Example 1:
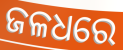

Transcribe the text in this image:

ଜଳଧରେ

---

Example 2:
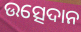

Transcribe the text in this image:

ଉତ୍ସେଦାନ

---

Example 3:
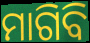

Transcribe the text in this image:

ମାଗିବି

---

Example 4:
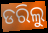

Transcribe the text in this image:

ଡରିଲୁ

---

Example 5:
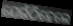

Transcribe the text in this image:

ଯେଉଁଠିହେଲେ